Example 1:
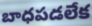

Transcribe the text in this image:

బాధపడలేక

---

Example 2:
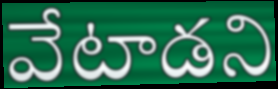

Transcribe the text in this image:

వేటాడని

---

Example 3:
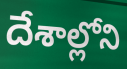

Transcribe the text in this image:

దేశాల్లోని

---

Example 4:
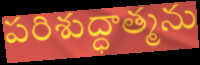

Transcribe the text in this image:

పరిశుద్ధాత్మను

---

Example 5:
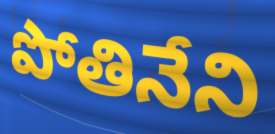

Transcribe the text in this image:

పోతినేని